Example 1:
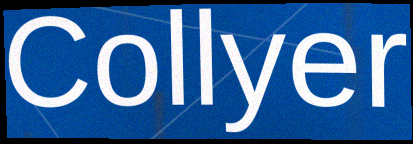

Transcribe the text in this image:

Collyer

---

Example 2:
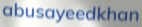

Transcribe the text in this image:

abusayeedkhan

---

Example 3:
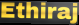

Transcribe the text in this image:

Ethiraj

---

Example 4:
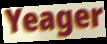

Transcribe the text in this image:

Yeager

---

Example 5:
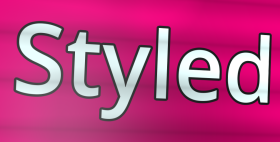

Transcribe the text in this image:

Styled